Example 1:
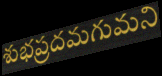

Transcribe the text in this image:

శుభప్రదమగుమని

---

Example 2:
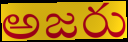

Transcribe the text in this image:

అజరు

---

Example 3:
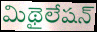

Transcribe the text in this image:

మిథైలేషన్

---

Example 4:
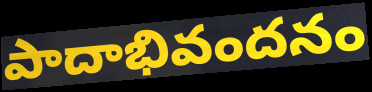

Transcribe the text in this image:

పాదాభివందనం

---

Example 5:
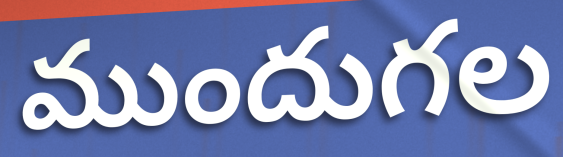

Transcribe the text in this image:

ముందుగల